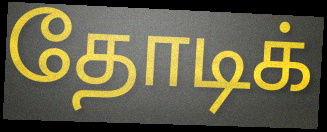
தோடிக்